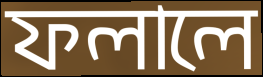
ফলালে